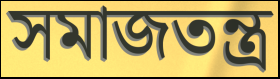
সমাজতন্ত্র